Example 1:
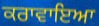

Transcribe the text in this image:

ਕਰਾਵਾਇਆ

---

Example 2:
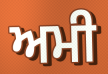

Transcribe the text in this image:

ਅਮੀ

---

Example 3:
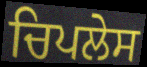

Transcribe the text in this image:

ਚਿਪਲੇਸ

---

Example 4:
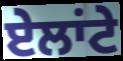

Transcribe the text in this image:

ਏਲਾਂਟੇ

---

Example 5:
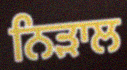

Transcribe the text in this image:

ਨਿੜਾਲ